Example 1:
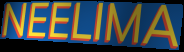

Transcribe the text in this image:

NEELIMA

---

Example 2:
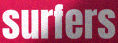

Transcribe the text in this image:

surfers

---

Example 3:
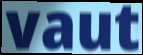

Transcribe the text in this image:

vaut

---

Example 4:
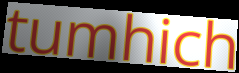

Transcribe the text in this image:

tumhich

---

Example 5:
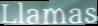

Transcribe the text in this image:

Llamas